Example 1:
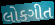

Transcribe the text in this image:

લોકગીત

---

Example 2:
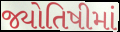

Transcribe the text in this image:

જ્યોતિષીમાં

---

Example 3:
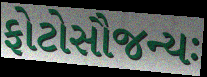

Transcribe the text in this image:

ફોટોસૌજન્યઃ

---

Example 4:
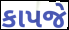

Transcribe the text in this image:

કાપજે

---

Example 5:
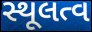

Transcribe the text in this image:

સ્થૂલત્વ